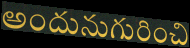
అందునుగురించి